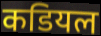
कडियल